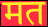
मत